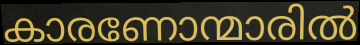
കാരണോന്മാരിൽ